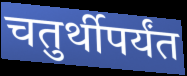
चतुर्थीपर्यंत